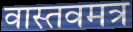
वास्तवमत्र